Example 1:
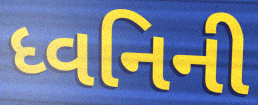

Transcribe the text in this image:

ધ્વનિની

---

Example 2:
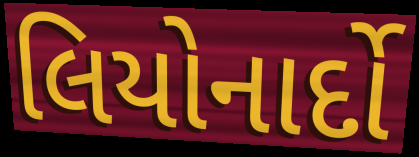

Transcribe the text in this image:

લિયોનાર્દો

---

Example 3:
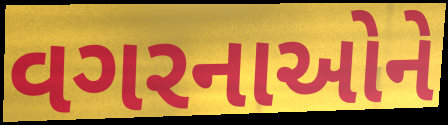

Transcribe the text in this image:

વગરનાઓને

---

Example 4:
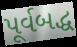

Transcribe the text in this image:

પૂર્વબદ્ધ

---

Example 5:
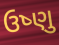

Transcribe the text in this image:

ઉષ્ણુ